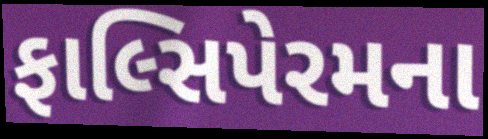
ફાલ્સિપેરમના